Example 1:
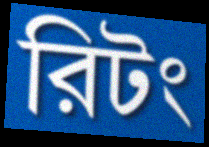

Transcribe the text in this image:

রিটং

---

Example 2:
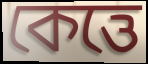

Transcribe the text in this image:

কেত্তে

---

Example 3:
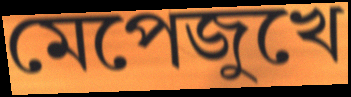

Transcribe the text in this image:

মেপেজুখে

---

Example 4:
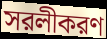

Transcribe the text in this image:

সরলীকরণ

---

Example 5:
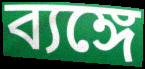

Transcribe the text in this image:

ব্যঙ্গে